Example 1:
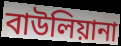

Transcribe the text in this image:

বাউলিয়ানা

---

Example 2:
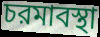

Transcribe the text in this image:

চরমাবস্থা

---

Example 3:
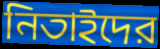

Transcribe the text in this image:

নিতাইদের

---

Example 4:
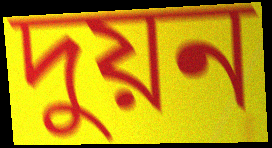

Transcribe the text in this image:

দুয়ন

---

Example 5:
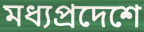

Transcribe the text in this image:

মধ্যপ্রদেশে